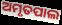
ଅମୃତପାଲ